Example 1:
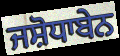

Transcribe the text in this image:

ਜਸ਼ੋਧਾਬੇਨ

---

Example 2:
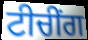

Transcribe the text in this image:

ਟੀਚੀਂਗ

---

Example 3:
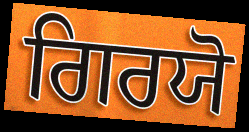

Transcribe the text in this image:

ਗਿਰਯੋ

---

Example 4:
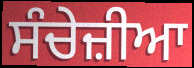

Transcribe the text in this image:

ਸੰਚੇਜ਼ੀਆ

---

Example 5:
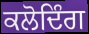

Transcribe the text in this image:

ਕਲੋਦਿੰਗ